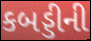
કબડ્ડીની